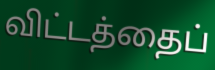
விட்டத்தைப்